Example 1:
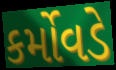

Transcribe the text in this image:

કર્મોવડે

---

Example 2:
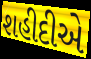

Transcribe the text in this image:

શહીદીએ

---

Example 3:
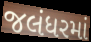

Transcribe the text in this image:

જલંધરમાં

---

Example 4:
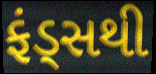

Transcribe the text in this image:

ફંડ્સથી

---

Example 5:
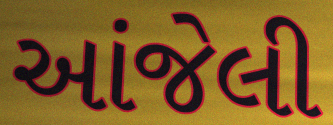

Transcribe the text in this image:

આંજેલી